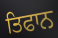
ਤਿਫਾਨ